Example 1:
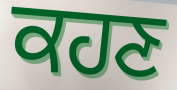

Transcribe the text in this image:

ਕਹਣ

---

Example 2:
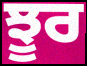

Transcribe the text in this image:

ਝੂਰ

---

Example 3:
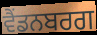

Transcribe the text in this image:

ਵੈਂਡਨਬਰਗ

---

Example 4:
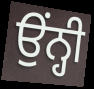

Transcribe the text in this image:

ਉਂਨ੍ਹੀ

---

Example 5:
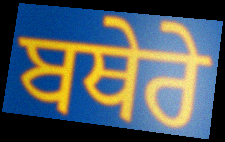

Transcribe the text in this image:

ਬਥੇਰੇ